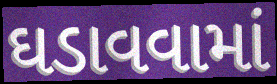
ઘડાવવામાં